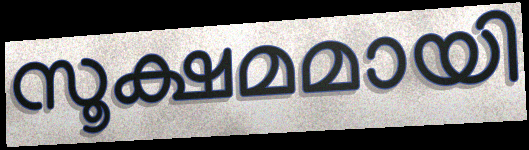
സൂക്ഷമമായി